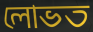
লোভত